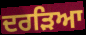
ਦਰੜਿਆ